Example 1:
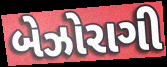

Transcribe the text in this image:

બેઝોરાગી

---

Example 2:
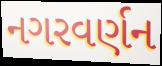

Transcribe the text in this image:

નગરવર્ણન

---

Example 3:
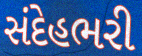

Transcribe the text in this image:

સંદેહભરી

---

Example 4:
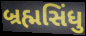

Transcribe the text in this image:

બ્રહ્મસિંધુ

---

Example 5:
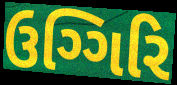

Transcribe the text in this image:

ઉગ્ગિરિ